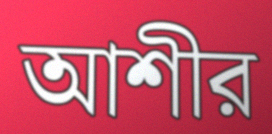
আশীর